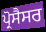
ਪ੍ਰੋਸੈਸਰ